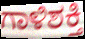
ಗಾಳಿಶಕ್ತಿ